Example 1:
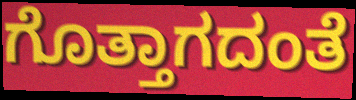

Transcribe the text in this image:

ಗೊತ್ತಾಗದಂತೆ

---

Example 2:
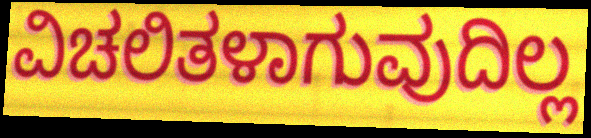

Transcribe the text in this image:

ವಿಚಲಿತಳಾಗುವುದಿಲ್ಲ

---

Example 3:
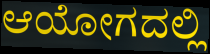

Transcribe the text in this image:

ಆಯೋಗದಲ್ಲಿ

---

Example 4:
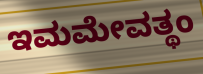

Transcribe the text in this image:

ಇಮಮೇವತ್ಥಂ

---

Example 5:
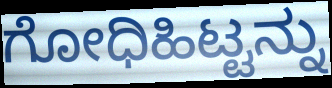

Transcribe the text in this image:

ಗೋಧಿಹಿಟ್ಟನ್ನು